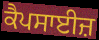
ਕੈਪਸਾਈਜ਼